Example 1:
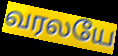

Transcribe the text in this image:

வரலயே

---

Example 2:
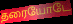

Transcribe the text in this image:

தரையோடே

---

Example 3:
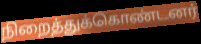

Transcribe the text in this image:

நிறைத்துக்கொண்டனர்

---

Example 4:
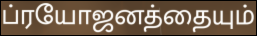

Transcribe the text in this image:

ப்ரயோஜனத்தையும்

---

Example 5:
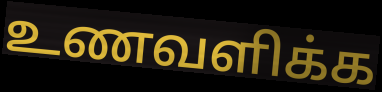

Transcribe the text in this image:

உணவளிக்க